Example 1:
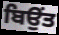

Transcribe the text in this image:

ਬਿਉਂਤ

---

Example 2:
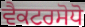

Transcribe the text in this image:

ਵੈਕਟਰਸੋਧੋ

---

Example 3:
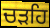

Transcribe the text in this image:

ਚੜਹਿ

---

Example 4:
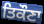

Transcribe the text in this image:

ਤਿਕੌਣਾ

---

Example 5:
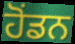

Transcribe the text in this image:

ਹੋਂਡਨ